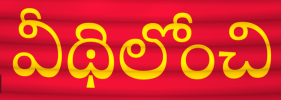
వీథిలోంచి